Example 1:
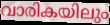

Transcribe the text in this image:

വാരികയിലും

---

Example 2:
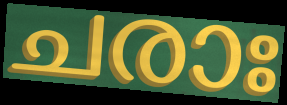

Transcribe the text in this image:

ചരാഃ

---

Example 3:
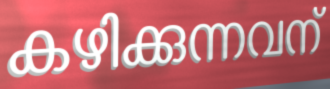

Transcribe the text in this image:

കഴിക്കുന്നവന്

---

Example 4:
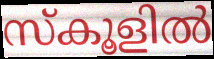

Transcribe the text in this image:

സ്കൂളിൽ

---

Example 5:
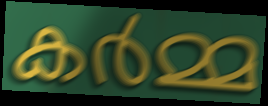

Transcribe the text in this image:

കർമ്മ